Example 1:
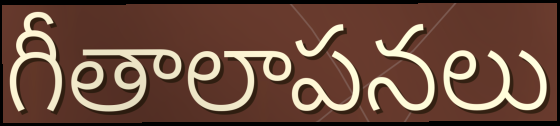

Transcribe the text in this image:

గీతాలాపనలు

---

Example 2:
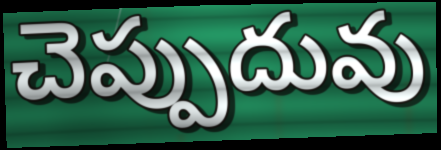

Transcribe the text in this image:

చెప్పుదువు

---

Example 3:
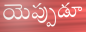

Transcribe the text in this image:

యెప్పుడూ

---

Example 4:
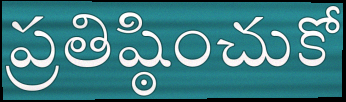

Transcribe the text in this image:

ప్రతిష్ఠించుకో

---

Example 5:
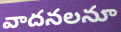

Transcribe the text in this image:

వాదనలనూ